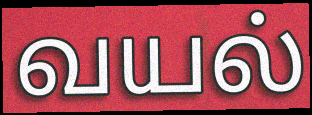
வயல்